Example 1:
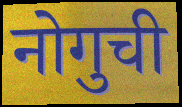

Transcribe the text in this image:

नोगुची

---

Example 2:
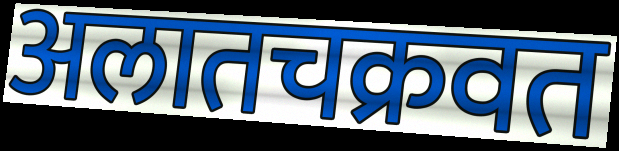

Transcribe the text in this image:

अलातचक्रवत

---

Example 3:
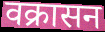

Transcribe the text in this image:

वक्रासन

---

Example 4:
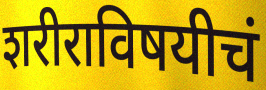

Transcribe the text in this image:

शरीराविषयीचं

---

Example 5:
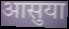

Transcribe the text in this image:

आसुया